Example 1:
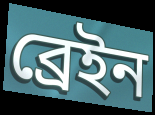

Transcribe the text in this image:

ব্ৰেইন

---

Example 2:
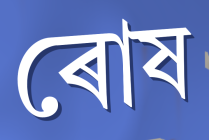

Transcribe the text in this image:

ৰোষ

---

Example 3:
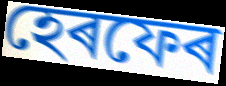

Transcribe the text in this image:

হেৰফেৰ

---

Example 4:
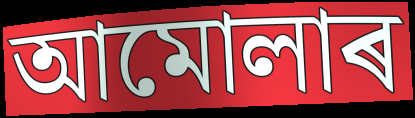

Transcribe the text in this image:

আমোলাৰ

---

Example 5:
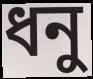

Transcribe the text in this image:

ধনু